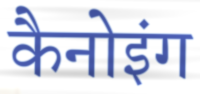
कैनोइंग